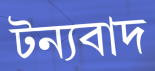
টন্যবাদ